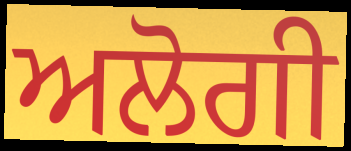
ਅਲੋਗੀ